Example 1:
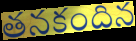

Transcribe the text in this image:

తనకందిన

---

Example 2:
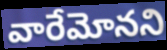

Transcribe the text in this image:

వారేమోనని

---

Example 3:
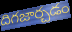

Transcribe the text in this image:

దిగజార్చడం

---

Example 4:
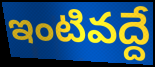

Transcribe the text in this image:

ఇంటివద్దే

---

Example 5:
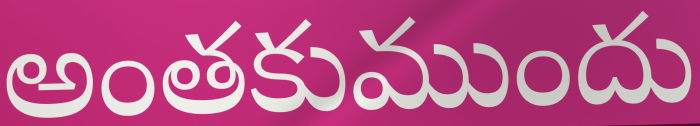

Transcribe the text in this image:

అంతకుముందు